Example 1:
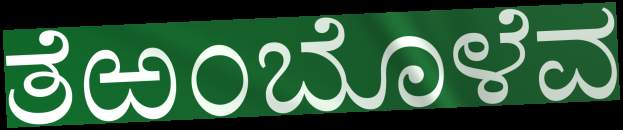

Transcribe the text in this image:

ತೆಱಂಬೊಳೆವ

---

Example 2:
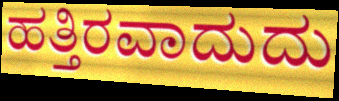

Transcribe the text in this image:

ಹತ್ತಿರವಾದುದು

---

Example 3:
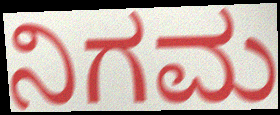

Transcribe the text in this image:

ನಿಗಮ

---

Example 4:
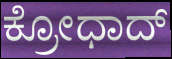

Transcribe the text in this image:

ಕ್ರೋಧಾದ್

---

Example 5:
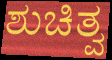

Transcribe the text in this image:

ಶುಚಿತ್ವ